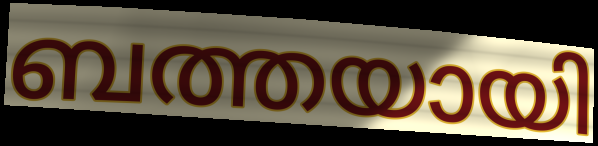
ബത്തയായി